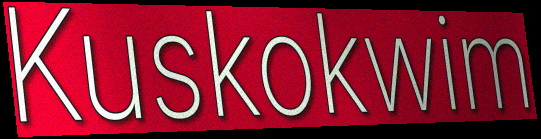
Kuskokwim